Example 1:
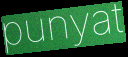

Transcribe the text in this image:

punyat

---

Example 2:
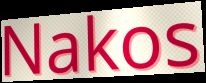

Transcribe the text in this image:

Nakos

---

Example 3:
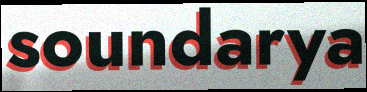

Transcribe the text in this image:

soundarya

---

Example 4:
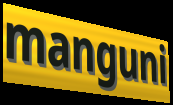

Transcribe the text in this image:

manguni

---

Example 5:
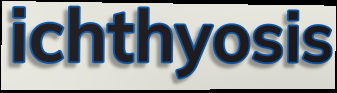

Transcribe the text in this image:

ichthyosis